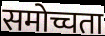
समोच्चता